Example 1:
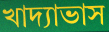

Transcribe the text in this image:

খাদ্যাভাস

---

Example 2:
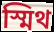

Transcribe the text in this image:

স্মিথ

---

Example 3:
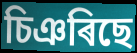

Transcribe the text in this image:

চিঞৰিছে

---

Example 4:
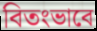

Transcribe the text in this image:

বিতংভাবে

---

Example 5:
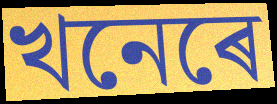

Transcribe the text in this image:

খনেৰে